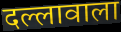
दल्लावाला